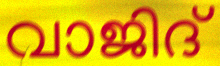
വാജിദ്